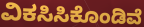
ವಿಕಸಿಸಿಕೊಂಡಿವೆ